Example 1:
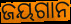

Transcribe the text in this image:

ଜୟଗାନ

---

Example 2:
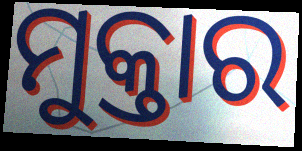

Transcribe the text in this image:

ମୁକ୍ତାର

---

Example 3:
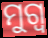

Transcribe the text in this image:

ମୁଗ୍ୱ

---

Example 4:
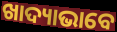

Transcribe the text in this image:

ଖାଦ୍ୟାଭାବେ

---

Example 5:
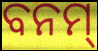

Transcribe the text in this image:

ବନମ୍